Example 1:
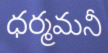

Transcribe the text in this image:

ధర్మమనీ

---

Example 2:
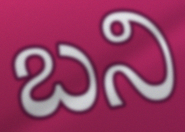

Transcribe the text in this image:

బని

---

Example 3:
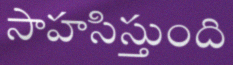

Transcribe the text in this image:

సాహసిస్తుంది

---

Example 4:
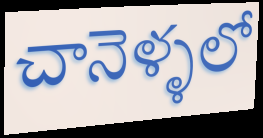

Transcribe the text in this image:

చానెళ్ళలో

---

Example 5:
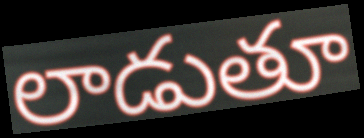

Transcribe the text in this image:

లాడుతూ